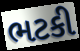
ભટકી